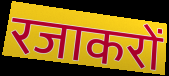
रजाकरों